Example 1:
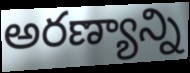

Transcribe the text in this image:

అరణ్యాన్ని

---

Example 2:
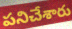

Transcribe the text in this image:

పనిచేశారు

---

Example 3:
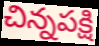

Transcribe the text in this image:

చిన్నపక్షి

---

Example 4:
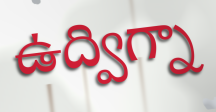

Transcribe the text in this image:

ఉద్విగ్నా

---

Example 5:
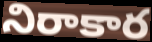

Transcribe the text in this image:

నిరాకార